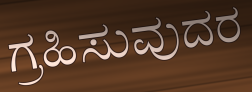
ಗ್ರಹಿಸುವುದರ